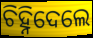
ଚିହ୍ନିଦେଲେ